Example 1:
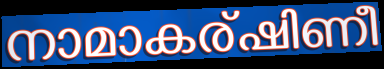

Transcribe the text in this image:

നാമാകര്ഷിണീ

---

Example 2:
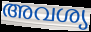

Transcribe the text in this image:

അവശ്യ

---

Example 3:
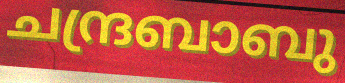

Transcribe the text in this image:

ചന്ദ്രബാബു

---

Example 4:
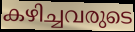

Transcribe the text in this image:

കഴിച്ചവരുടെ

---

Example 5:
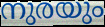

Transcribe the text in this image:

നുരയും